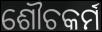
ଶୌଚକର୍ମ